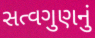
સત્વગુણનું